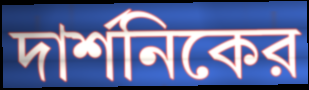
দার্শনিকের